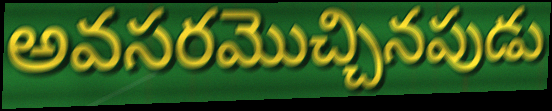
అవసరమొచ్చినపుడు